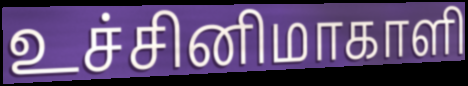
உச்சினிமாகாளி